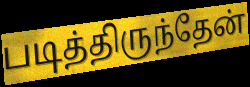
படித்திருந்தேன்